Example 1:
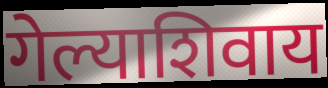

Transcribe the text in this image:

गेल्याशिवाय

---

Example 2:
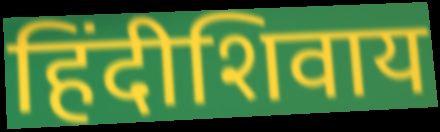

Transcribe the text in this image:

हिंदीशिवाय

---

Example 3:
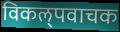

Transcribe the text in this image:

विकल्पवाचक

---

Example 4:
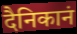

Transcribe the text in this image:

दैनिकानं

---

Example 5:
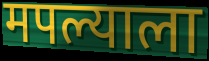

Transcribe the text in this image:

मपल्याला